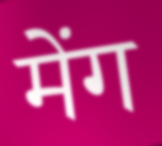
मेंग